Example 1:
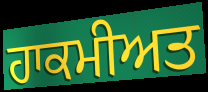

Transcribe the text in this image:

ਹਾਕਮੀਅਤ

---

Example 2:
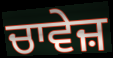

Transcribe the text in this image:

ਚਾਵੇਜ਼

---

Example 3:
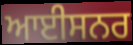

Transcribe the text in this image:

ਆਈਸਨਰ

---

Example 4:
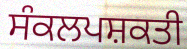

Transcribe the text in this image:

ਸੰਕਲਪਸ਼ਕਤੀ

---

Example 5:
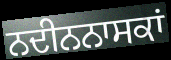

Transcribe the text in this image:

ਨਦੀਨਨਾਸਕਾਂ